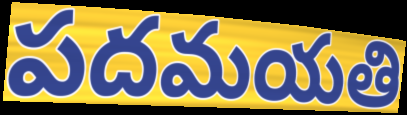
పదమయతి